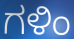
ಗಳಿಂ